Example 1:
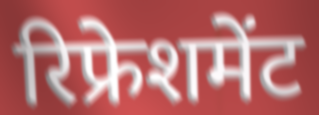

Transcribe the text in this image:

रिफ्रेशमेंट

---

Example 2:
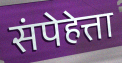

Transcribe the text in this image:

संपेहेत्ता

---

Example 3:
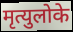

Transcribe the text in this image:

मृत्युलोके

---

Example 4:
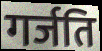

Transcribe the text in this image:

गर्जति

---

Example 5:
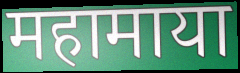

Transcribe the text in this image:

महामाया